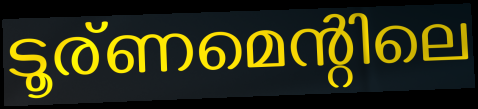
ടൂര്ണമെന്റിലെ